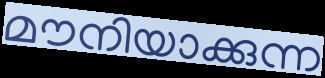
മൗനിയാക്കുന്ന